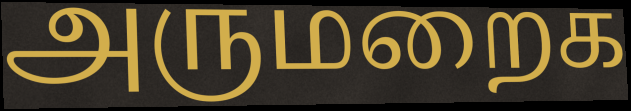
அருமறைக